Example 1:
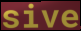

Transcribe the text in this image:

sive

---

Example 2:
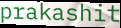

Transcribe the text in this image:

prakashit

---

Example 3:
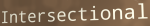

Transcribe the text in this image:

Intersectional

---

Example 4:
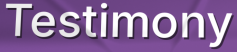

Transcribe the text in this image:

Testimony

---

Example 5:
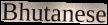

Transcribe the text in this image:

Bhutanese